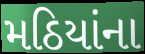
મઠિયાંના